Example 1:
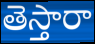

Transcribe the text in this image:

తెస్తారా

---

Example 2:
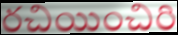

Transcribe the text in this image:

రచియించిరి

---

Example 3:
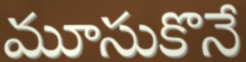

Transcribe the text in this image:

మూసుకొనే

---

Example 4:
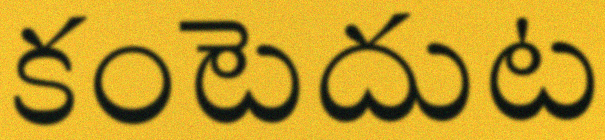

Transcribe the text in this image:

కంటెదుట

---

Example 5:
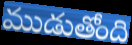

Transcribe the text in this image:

ముడుతోంది